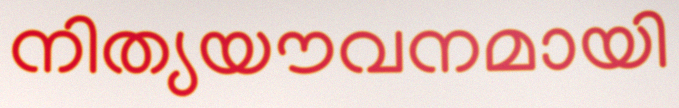
നിത്യയൗവനമായി